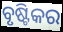
ବୃଷ୍ଟିକର